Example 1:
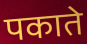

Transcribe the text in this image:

पकाते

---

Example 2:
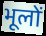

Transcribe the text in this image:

भूलों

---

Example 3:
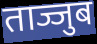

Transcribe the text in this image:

ताज्जुब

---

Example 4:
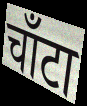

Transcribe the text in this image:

चाँटा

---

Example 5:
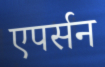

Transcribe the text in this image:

एपर्सन